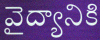
వైద్యానికి